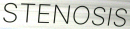
STENOSIS